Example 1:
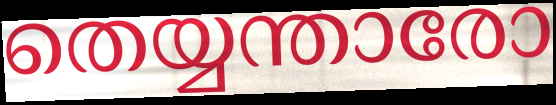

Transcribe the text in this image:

തെയ്യന്താരോ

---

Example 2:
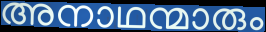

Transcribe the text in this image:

അനാഥന്മാരും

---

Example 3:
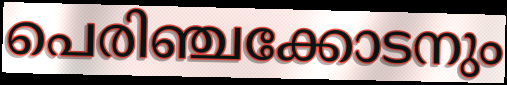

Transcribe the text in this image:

പെരിഞ്ചക്കോടനും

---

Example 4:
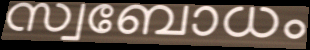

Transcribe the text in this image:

സ്വബോധം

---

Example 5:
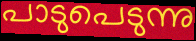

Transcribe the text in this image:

പാടുപെടുന്നു